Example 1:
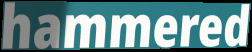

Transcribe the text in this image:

hammered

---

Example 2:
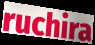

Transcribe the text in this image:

ruchira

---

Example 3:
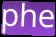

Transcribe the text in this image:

phe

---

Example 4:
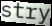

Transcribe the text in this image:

stry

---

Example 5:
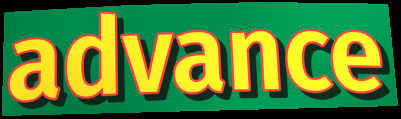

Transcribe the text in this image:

advance